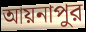
আয়নাপুর